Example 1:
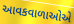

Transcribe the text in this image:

આવકવાળાઓએ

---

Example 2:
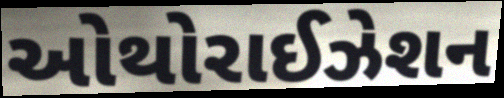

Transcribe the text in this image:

ઓથોરાઈઝેશન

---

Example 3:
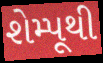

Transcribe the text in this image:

શેમ્પૂથી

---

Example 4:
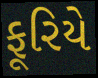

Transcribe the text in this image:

ફૂરિયે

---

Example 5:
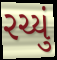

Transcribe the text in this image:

રચ્યું